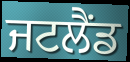
ਜਟਲੈਂਡ